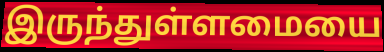
இருந்துள்ளமையை